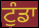
ਟੁੰਡਾ